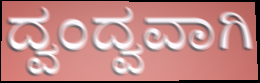
ದ್ವಂದ್ವವಾಗಿ